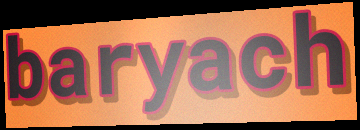
baryach